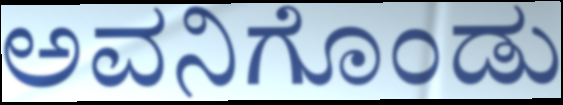
ಅವನಿಗೊಂಡು